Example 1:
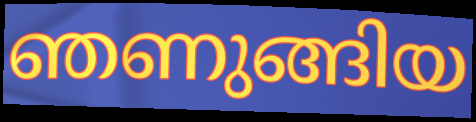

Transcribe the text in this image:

ഞണുങ്ങിയ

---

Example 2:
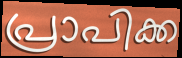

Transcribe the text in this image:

പ്രാപിക്ക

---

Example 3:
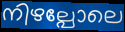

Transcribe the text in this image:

നിഴല്പോലെ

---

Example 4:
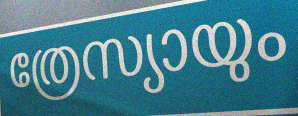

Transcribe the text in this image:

ത്രേസ്യായും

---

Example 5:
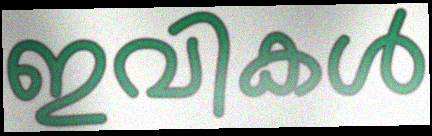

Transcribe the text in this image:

ഇവികൾ